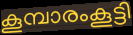
കൂമ്പാരംകൂട്ടി